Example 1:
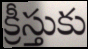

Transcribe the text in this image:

క్రీస్తుకు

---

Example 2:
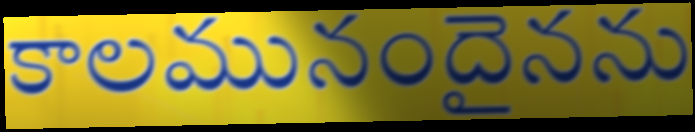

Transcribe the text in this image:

కాలమునందైనను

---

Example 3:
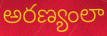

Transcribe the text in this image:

అరణ్యంలా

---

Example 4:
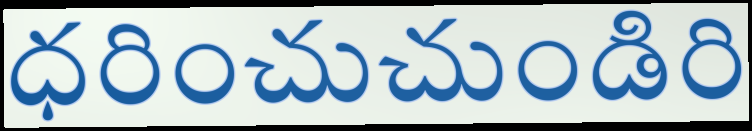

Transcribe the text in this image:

ధరించుచుండిరి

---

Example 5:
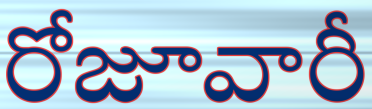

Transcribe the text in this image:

రోజూవారీ